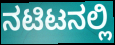
ನಟಿಟನಲ್ಲಿ